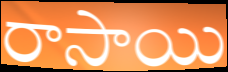
రాసాయి